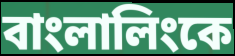
বাংলালিংকে